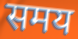
समय